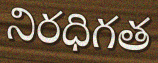
నిరధిగత